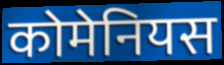
कोमेनियस